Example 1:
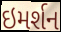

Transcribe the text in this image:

ઇમર્શન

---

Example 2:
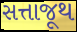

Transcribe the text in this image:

સત્તાજૂથ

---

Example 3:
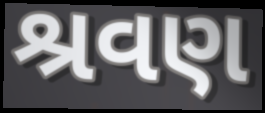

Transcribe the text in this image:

શ્રવણ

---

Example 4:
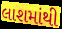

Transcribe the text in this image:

લાશમાંથી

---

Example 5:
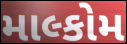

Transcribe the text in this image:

માલ્કોમ